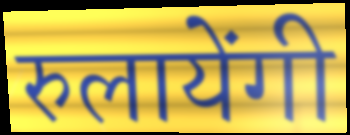
रुलायेंगी